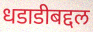
धडाडीबद्दल